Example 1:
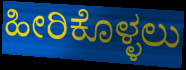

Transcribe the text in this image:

ಹೀರಿಕೊಳ್ಳಲು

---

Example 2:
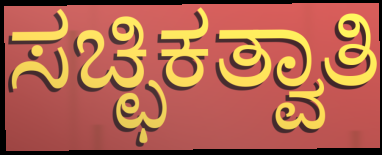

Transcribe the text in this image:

ಸಚ್ಛಿಕತ್ವಾತಿ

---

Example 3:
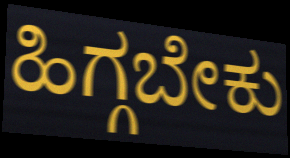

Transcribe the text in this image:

ಹಿಗ್ಗಬೇಕು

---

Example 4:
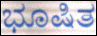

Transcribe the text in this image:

ಭೂಷಿತ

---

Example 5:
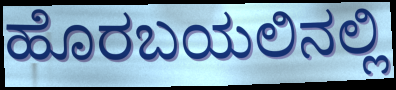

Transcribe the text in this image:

ಹೊರಬಯಲಿನಲ್ಲಿ